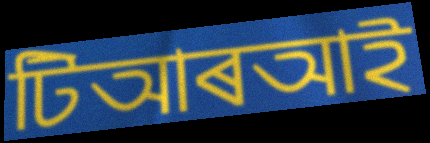
টিআৰআই